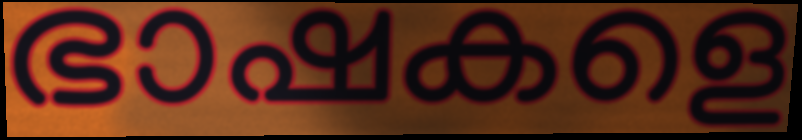
ഭാഷകളെ